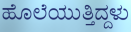
ಹೊಲೆಯುತ್ತಿದ್ದಳು